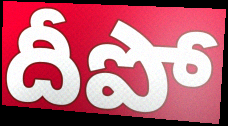
దీపో